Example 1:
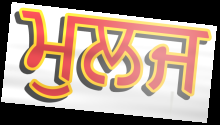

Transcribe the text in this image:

ਮੁਲਜ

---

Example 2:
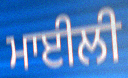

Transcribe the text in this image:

ਮਾਈਲੀ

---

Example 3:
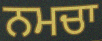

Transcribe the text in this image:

ਨਮਚਾ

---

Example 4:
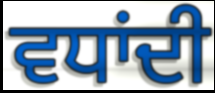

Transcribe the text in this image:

ਵਧਾਂਦੀ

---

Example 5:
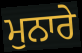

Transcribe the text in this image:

ਮੁਨਾਰੇ